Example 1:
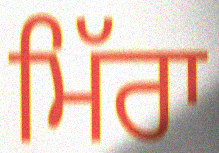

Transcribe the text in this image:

ਮਿੱਰਾ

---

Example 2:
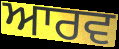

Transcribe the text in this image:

ਆਰਵ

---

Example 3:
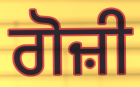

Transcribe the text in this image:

ਗੋਜ਼ੀ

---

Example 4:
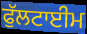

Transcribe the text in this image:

ਫੁੱਲਟਾਈਮ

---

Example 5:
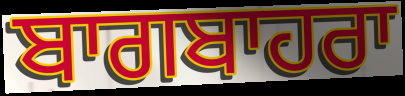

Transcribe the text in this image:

ਬਾਗਬਾਹਰਾ